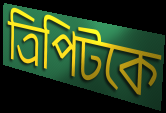
ত্রিপিটকে